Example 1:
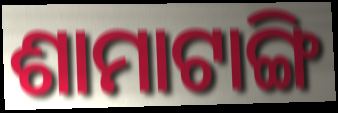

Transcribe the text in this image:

ଶାମାଟାଙ୍ଗି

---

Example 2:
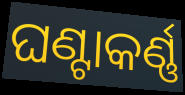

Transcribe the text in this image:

ଘଣ୍ଟାକର୍ଣ୍ଣ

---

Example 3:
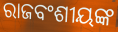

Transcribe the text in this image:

ରାଜବଂଶୀୟଙ୍କ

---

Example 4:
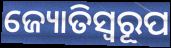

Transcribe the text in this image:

ଜ୍ୟୋତିସ୍ୱରୂପ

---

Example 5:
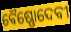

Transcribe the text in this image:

ବୈଷ୍ଣୋଦେବୀ